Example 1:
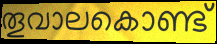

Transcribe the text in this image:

തൂവാലകൊണ്ട്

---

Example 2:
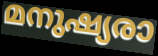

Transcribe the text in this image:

മനുഷ്യരാ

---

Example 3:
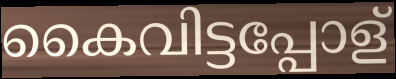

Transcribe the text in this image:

കൈവിട്ടപ്പോള്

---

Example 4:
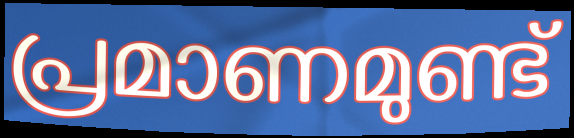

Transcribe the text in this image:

പ്രമാണമുണ്ട്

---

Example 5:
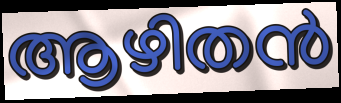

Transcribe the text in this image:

ആഴിതൻ